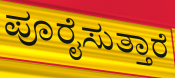
ಪೂರೈಸುತ್ತಾರೆ